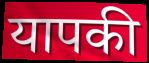
यापकी